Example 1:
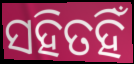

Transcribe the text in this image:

ସହିତହିଁ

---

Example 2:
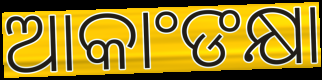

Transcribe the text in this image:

ଆକାଂଙକ୍ଷା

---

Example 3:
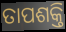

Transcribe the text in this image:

ତାପଶକ୍ତି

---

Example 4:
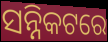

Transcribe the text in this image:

ସନ୍ନିକଟରେ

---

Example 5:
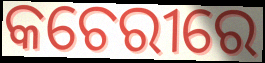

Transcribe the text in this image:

କଚେରୀରେ